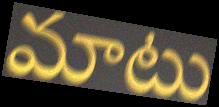
మాటు